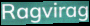
Ragvirag